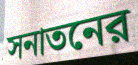
সনাতনের